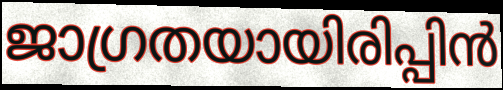
ജാഗ്രതയായിരിപ്പിൻ